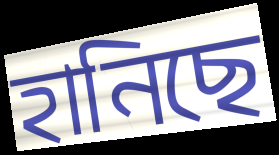
হানিছে